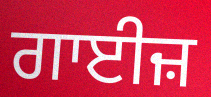
ਗਾਈਜ਼